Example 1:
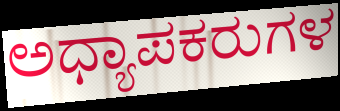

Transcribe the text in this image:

ಅಧ್ಯಾಪಕರುಗಳ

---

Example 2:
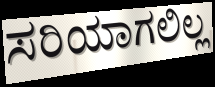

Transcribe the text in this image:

ಸರಿಯಾಗಲಿಲ್ಲ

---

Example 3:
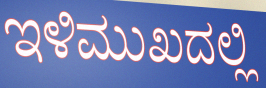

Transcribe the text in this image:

ಇಳಿಮುಖದಲ್ಲಿ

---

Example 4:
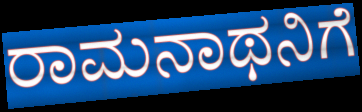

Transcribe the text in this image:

ರಾಮನಾಥನಿಗೆ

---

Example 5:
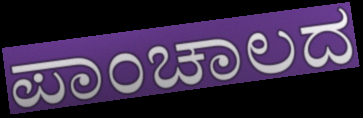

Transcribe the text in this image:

ಪಾಂಚಾಲದ